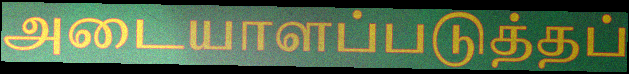
அடையாளப்படுத்தப்